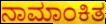
ನಾಮಾಂಕಿತ